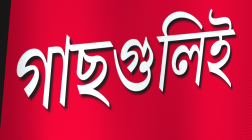
গাছগুলিই